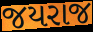
જયરાજ